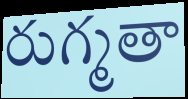
రుగ్మతా